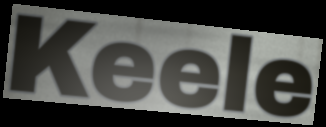
Keele